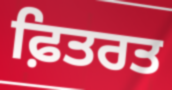
ਫ਼ਿਤਰਤ